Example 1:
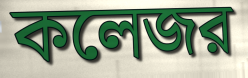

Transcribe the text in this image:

কলেজর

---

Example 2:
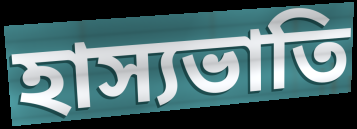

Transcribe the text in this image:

হাস্যভাতি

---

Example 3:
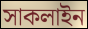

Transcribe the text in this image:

সাকলাইন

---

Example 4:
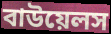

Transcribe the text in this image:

বাউয়েলস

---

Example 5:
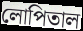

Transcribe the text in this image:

লোপিতাল